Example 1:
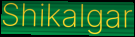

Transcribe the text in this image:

Shikalgar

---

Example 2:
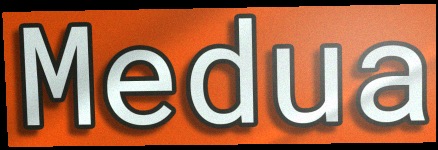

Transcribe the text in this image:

Medua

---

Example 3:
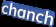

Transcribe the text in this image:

chanch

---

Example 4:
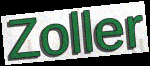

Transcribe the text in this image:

Zoller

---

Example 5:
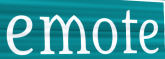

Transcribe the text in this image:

emote